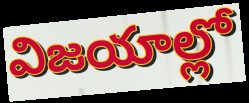
విజయాల్లో